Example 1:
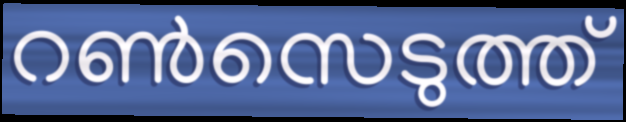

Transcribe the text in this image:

റൺസെടുത്ത്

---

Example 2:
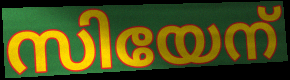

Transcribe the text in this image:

സിയേന്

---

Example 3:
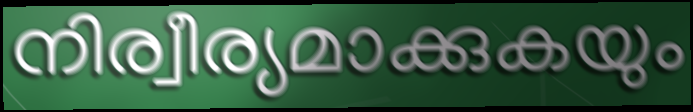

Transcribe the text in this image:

നിര്വീര്യമാക്കുകയും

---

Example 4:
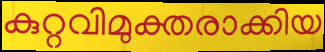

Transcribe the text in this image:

കുറ്റവിമുക്തരാക്കിയ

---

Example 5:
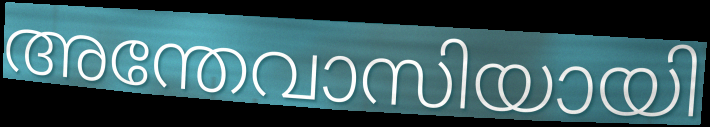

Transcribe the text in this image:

അന്തേവാസിയായി